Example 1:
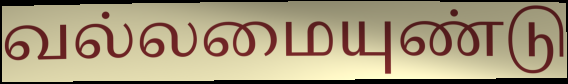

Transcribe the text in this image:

வல்லமையுண்டு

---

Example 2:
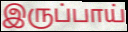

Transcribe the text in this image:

இருப்பாய்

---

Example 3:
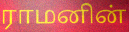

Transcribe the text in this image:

ராமனின்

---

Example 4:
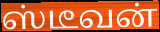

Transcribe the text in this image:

ஸ்டீவன்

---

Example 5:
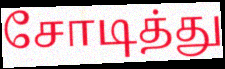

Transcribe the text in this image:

சோடித்து